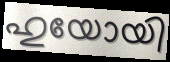
ഹുയോയി